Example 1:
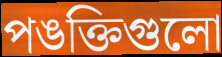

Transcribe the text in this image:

পঙক্তিগুলো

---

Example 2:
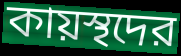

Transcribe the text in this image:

কায়স্থদের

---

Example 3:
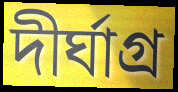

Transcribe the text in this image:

দীর্ঘাগ্র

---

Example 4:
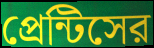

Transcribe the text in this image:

প্রেন্টিসের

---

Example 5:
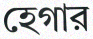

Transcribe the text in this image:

হেগার